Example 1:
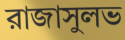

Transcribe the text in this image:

রাজাসুলভ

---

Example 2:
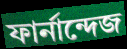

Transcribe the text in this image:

ফার্নান্দেজ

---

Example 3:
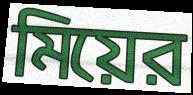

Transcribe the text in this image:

মিয়ের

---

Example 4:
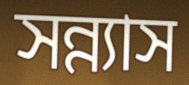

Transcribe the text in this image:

সন্ন্যাস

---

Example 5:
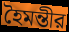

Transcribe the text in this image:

হৈমন্তীর